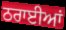
ਠਰਾਈਆਂ